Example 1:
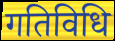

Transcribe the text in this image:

गतिविधि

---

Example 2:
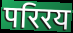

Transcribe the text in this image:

परिरय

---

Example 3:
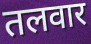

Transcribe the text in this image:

तलवार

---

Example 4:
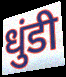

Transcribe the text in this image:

धुंडी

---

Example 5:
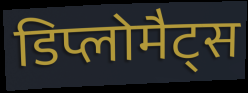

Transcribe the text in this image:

डिप्लोमैट्स